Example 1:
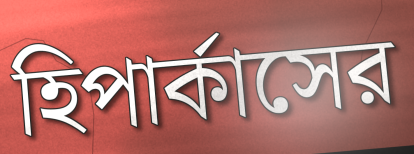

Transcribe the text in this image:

হিপার্কাসের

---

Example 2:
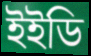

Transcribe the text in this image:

ইইডি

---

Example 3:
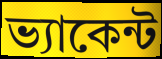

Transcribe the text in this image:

ভ্যাকেন্ট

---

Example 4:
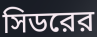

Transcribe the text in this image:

সিডরের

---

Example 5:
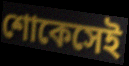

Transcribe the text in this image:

শোকেসেই